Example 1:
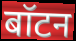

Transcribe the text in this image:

बॉटन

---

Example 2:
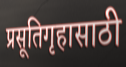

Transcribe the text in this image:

प्रसूतिगृहासाठी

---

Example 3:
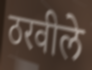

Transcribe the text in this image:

ठरवीले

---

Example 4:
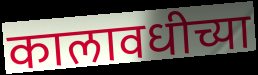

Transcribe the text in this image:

कालावधीच्या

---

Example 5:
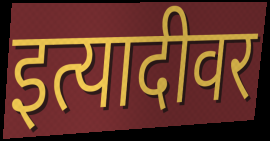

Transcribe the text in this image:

इत्यादीवर